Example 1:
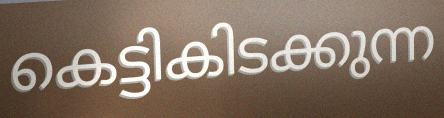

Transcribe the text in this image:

കെട്ടികിടക്കുന്ന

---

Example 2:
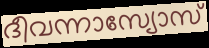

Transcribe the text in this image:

ദീവന്നാസ്യോസ്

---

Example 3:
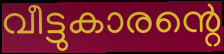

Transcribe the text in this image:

വീട്ടുകാരന്റെ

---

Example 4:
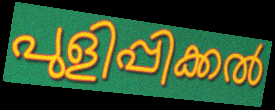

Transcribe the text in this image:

പുളിപ്പിക്കൽ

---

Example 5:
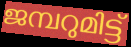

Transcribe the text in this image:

ജമ്പറുമിട്ട്